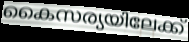
കൈസര്യയിലേക്ക്